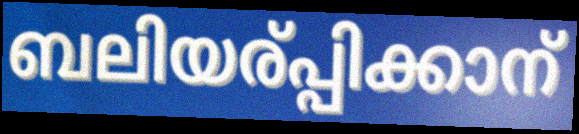
ബലിയര്പ്പിക്കാന്